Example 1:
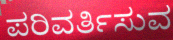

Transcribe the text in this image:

ಪರಿವರ್ತಿಸುವ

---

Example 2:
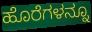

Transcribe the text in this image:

ಹೊರೆಗಳನ್ನೂ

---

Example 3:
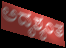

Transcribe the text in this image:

ಅದೃಶ್ಯಂತ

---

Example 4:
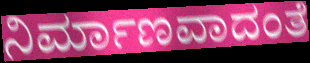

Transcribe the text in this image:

ನಿರ್ಮಾಣವಾದಂತೆ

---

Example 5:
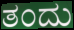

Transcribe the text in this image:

ತಂದು